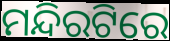
ମନ୍ଦିରଟିରେ